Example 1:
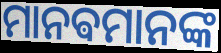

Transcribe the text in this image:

ମାନଵମାନଙ୍କ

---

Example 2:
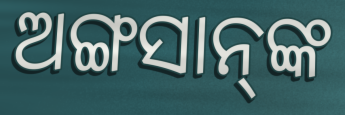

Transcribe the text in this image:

ଅଙ୍ଗସାନ୍‌ଙ୍କ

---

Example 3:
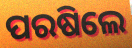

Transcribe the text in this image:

ପରଷିଲେ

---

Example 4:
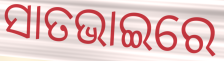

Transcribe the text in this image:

ସାତଭାଇରେ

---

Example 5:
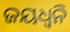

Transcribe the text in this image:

ଜୟଧ୍ୱନି